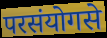
परसंयोगसे